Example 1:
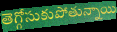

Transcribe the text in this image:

తెగ్గోసుకుపోతున్నాయి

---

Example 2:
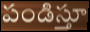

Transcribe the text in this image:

పండిస్తూ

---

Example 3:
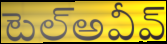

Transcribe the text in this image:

టెల్అవీవ్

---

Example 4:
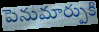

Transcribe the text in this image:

పెనుమార్పుకి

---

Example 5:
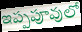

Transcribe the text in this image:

ఇప్పపూవులో